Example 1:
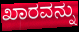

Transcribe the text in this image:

ಖಾರವನ್ನು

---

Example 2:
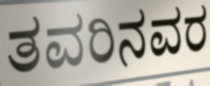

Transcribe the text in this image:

ತವರಿನವರ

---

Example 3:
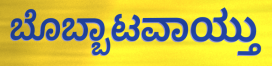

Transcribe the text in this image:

ಬೊಬ್ಬಾಟವಾಯ್ತು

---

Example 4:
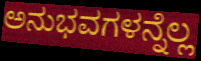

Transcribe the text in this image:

ಅನುಭವಗಳನ್ನೆಲ್ಲ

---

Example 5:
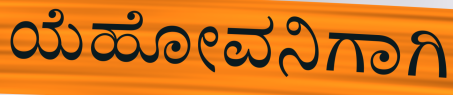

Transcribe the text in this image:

ಯೆಹೋವನಿಗಾಗಿ